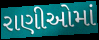
રાણીઓમાં